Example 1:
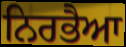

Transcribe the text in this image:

ਨਿਰਭੈਆ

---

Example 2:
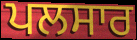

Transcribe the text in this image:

ਪਲਸਾਰ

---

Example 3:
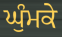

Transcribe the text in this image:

ਘੁੰਮਕੇ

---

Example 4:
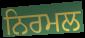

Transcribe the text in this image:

ਨਿਰਮਲ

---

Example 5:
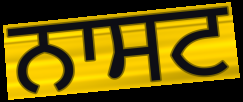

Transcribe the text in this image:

ਨਾਸਟ